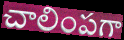
చాలింపగా